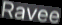
Ravee